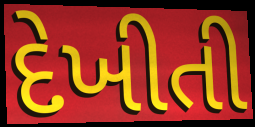
દેખીતી